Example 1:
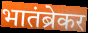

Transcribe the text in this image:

भातंब्रेकर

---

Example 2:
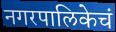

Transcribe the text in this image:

नगरपालिकेचं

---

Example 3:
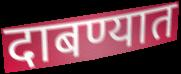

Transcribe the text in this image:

दाबण्यात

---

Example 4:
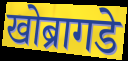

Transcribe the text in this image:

खोब्रागडे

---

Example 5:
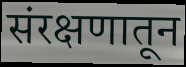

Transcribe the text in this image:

संरक्षणातून